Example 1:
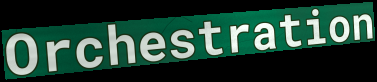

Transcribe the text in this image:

Orchestration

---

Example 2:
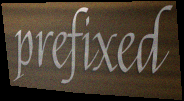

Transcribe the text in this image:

prefixed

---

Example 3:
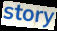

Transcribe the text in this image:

story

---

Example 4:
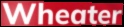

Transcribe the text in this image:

Wheater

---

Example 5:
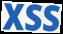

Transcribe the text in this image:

XSS